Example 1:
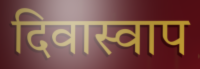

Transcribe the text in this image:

दिवास्वाप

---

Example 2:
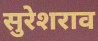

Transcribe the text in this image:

सुरेशराव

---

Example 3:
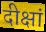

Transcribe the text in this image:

दीक्षां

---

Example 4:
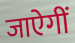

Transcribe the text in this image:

जाऐगीं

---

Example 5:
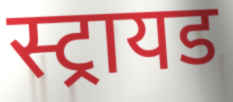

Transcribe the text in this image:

स्ट्रायड